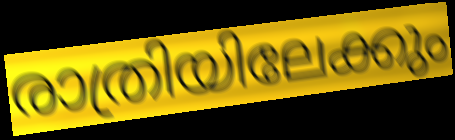
രാത്രിയിലേക്കും